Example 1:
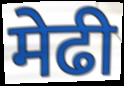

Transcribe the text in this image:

मेढी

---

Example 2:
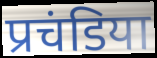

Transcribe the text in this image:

प्रचंडिया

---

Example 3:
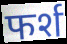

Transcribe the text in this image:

फर्श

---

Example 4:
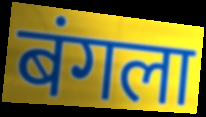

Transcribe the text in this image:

बंगला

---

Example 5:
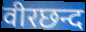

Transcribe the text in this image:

वीरछन्द